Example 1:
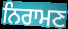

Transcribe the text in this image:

ਨਿਰਾਮਣ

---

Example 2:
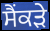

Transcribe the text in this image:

ਸੈਂਕੜੇ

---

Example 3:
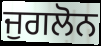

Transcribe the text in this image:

ਜੁਗਲੋਨ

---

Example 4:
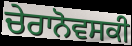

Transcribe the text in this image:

ਚੇਰਾਨੋਵਸਕੀ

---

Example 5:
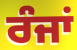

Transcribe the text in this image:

ਰੰਜਾਂ